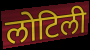
लोटिली